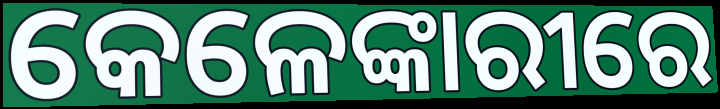
କେଳେଙ୍କାରୀରେ